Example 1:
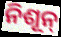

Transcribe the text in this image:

ନିଶୂନ୍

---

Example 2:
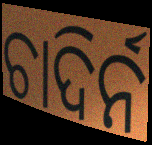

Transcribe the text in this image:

ଚାଦିର୍ନ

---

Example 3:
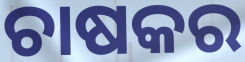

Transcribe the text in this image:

ଚାଷକର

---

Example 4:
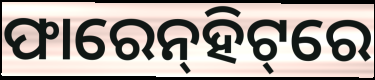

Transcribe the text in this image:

ଫାରେନ୍‌ହିଟ୍‌ରେ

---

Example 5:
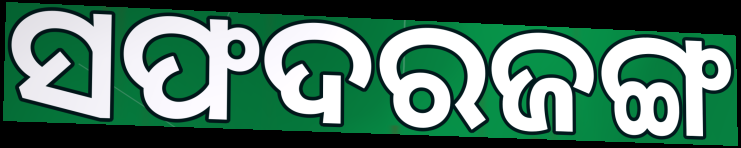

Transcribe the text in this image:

ସଫଦରଜଙ୍ଗ